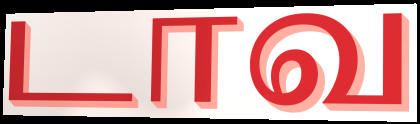
டாவ